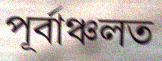
পূৰ্বাঞ্চলত